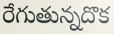
రేగుతున్నదొక